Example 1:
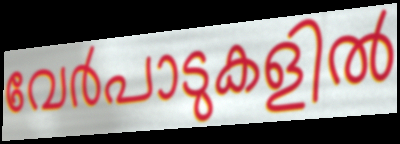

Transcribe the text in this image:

വേർപാടുകളിൽ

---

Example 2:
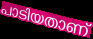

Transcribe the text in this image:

പാടിയതാണ്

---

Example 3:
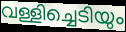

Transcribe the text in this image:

വള്ളിച്ചെടിയും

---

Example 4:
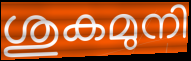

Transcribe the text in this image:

ശുകമുനി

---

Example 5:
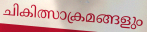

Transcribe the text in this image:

ചികിത്സാക്രമങ്ങളും